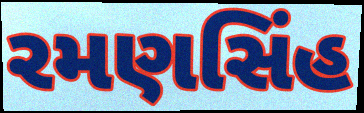
રમણસિંહ